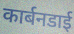
कार्बनडाई